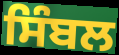
ਸਿੰਬਲ